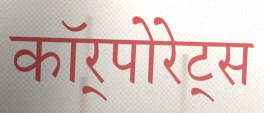
कॉर्पोरेट्‌स